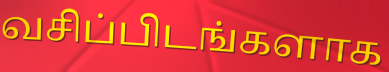
வசிப்பிடங்களாக